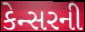
કેન્સરની